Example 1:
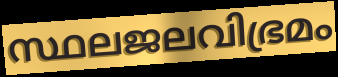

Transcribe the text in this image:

സ്ഥലജലവിഭ്രമം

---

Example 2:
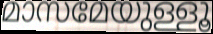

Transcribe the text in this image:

മാസമേയുള്ളൂ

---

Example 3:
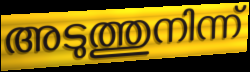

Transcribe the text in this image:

അടുത്തുനിന്ന്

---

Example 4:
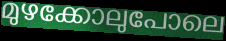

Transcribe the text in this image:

മുഴക്കോലുപോലെ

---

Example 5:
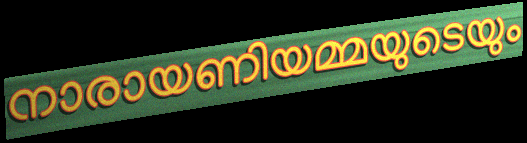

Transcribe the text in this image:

നാരായണിയമ്മയുടെയും